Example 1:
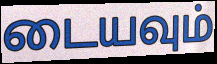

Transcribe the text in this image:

டையவும்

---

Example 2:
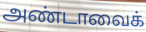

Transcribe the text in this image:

அண்டாவைக்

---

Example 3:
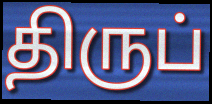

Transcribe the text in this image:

திருப்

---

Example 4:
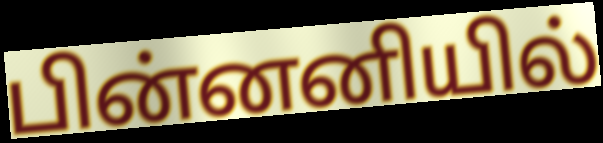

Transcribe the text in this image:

பின்னனியில்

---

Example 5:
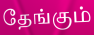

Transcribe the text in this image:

தேங்கும்